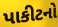
પાકીટનો